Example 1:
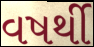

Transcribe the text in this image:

વષર્થી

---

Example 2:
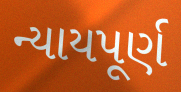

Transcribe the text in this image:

ન્યાયપૂર્ણ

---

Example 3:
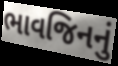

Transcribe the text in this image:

ભાવજિનનું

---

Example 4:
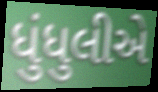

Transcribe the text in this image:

ધુંધુલીએ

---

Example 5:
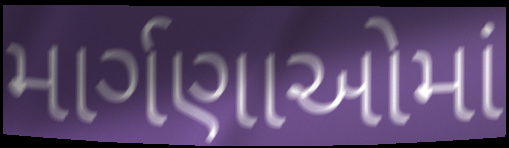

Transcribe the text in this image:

માર્ગણાઓમાં